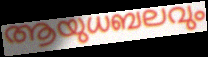
ആയുധബലവും